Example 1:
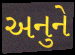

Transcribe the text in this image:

અનુને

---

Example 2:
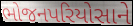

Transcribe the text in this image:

ભોજનપરિયોસાને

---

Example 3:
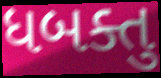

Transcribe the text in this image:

ધબક્તુ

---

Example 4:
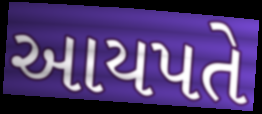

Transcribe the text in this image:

આયપતે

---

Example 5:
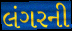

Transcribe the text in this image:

લંગરની